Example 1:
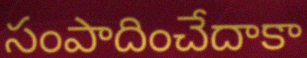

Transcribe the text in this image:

సంపాదించేదాకా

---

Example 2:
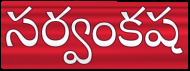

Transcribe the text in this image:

సర్వంకష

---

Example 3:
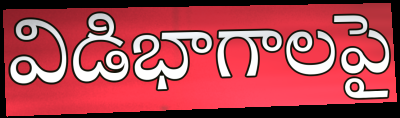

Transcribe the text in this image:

విడిభాగాలపై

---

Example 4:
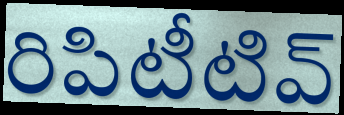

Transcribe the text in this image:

రిపిటీటివ్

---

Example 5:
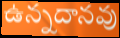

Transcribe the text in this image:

ఉన్నదానవు